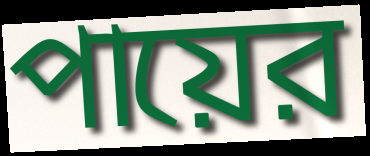
পায়ের